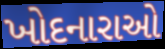
ખોદનારાઓ